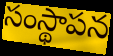
సంస్థాపన